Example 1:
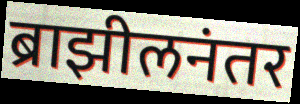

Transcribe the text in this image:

ब्राझीलनंतर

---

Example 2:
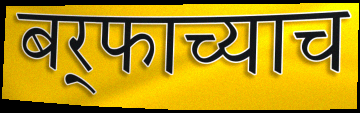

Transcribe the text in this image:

बर्फाच्याच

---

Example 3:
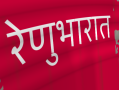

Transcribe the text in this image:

रेणुभारात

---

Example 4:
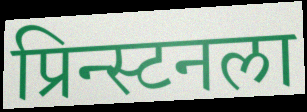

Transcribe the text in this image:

प्रिन्स्टनला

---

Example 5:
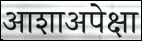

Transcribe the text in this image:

आशाअपेक्षा